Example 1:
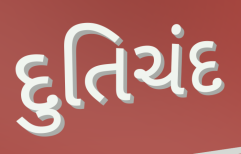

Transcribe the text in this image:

દુતિચંદ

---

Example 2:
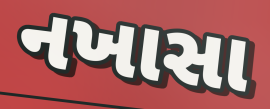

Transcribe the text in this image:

નખાસા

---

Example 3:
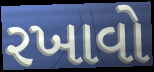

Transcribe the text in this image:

રખાવો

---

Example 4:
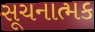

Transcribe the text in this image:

સૂચનાત્મક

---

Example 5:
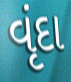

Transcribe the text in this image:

વૃંદા